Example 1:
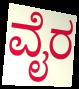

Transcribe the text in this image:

ವೈರ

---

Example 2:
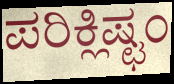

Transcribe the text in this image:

ಪರಿಕ್ಲಿಷ್ಟಂ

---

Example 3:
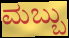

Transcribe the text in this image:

ಮಬ್ಬು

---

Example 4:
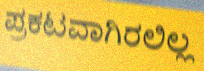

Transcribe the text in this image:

ಪ್ರಕಟವಾಗಿರಲಿಲ್ಲ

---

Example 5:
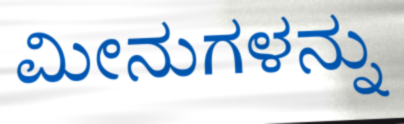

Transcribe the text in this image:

ಮೀನುಗಳನ್ನು